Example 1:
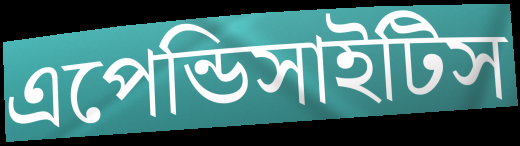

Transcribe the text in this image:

এপেন্ডিসাইটিস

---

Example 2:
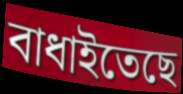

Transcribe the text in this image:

বাধাইতেছে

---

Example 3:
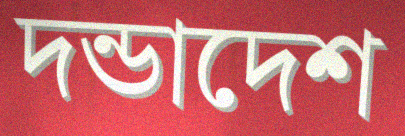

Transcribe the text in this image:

দন্ডাদেশ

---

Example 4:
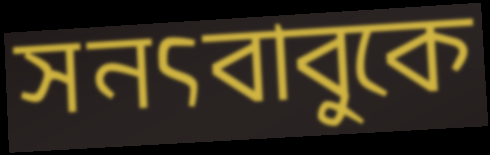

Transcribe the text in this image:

সনৎবাবুকে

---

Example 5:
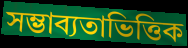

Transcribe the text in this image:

সম্ভাব্যতাভিত্তিক